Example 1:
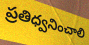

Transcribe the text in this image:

ప్రతిధ్వనించాలి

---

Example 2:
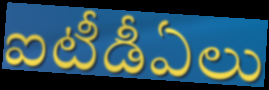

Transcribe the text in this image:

ఐటీడీఏలు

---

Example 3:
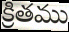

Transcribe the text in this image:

క్రితము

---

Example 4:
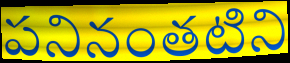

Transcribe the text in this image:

పనినంతటిని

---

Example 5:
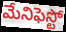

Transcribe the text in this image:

మేనిఫెస్టో